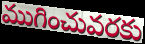
ముగించువరకు